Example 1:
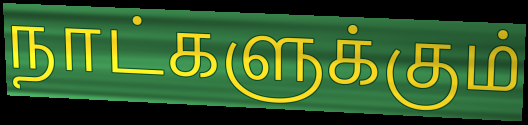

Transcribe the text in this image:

நாட்களுக்கும்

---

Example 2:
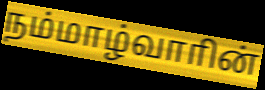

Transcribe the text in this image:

நம்மாழ்வாரின்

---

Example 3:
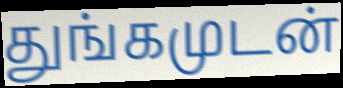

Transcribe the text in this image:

துங்கமுடன்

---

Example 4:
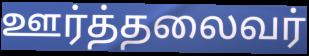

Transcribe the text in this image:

ஊர்த்தலைவர்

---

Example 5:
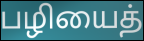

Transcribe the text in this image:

பழியைத்